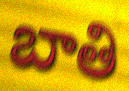
బాతి